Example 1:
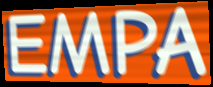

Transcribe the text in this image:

EMPA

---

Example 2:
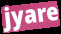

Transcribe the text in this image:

jyare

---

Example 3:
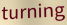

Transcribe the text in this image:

turning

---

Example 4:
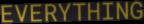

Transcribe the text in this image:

EVERYTHING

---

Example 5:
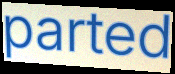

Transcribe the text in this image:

parted